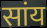
सांय